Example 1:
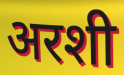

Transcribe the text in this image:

अरशी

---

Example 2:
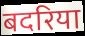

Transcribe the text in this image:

बदरिया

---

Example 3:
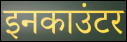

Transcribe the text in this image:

इनकाउंटर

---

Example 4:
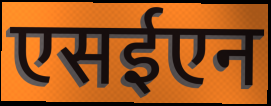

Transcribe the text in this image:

एसईएन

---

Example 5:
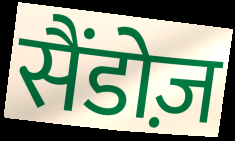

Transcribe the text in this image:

सैंडोज़